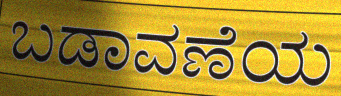
ಬಡಾವಣೆಯ